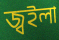
জ্বইলা